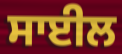
ਸਾਈਲ